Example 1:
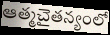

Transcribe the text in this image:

ఆత్మచైతన్యంలో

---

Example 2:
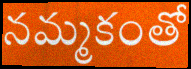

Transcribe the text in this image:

నమ్మకంతో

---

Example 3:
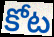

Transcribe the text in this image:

కోట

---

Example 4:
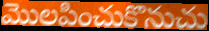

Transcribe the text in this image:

మొలపించుకొనుచు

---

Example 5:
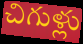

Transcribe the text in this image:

చిగుళ్లు